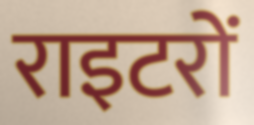
राइटरों